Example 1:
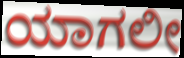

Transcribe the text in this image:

ಯಾಗಲೀ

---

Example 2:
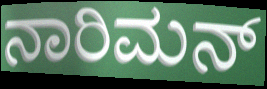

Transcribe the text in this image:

ನಾರಿಮನ್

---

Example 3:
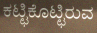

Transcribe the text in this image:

ಕಟ್ಟಿಕೊಟ್ಟಿರುವ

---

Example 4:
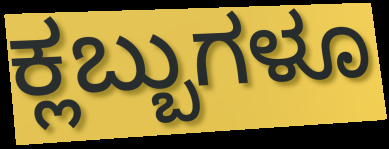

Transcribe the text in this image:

ಕ್ಲಬ್ಬುಗಳೂ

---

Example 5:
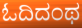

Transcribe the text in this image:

ಓದಿದಂಥ